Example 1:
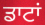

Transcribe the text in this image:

ਡਾਟਾਂ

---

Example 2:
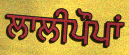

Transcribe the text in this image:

ਲਾਲੀਪੌਪਾਂ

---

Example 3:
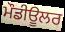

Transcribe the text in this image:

ਮੌਡੀਊਲਰ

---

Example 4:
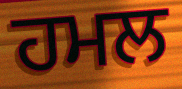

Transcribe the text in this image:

ਹਮਲ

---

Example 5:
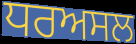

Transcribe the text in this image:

ਧਰਅਸਲ